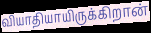
வியாதியாயிருக்கிறான்